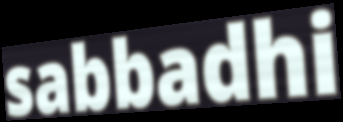
sabbadhi